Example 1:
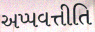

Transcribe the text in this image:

અપ્પવત્તીતિ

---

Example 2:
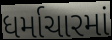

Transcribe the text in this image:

ધર્માચારમાં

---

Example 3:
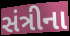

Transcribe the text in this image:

સંત્રીના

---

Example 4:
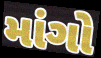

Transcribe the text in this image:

માંગો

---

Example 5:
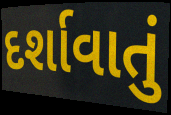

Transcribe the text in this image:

દર્શાવાતું